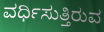
ವರ್ಧಿಸುತ್ತಿರುವ